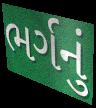
ભર્ગનું